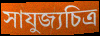
সাযুজ্যচিত্র